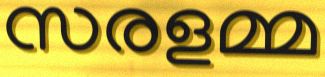
സരളമ്മ